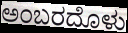
ಅಂಬರದೊಳು